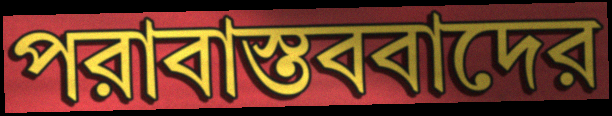
পরাবাস্তববাদের